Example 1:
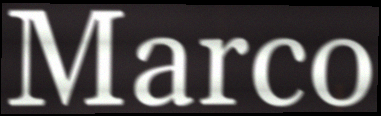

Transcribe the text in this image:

Marco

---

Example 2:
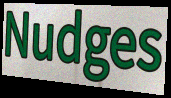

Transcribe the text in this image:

Nudges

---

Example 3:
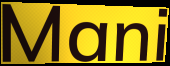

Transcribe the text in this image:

Mani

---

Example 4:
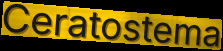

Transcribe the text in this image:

Ceratostema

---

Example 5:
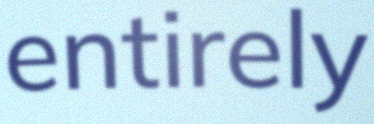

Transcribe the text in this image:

entirely